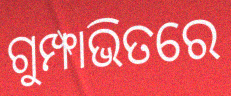
ଗୁମ୍ଫାଭିତରେ